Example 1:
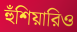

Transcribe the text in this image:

হুঁশিয়ারিও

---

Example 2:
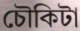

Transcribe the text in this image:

চৌকিটা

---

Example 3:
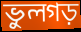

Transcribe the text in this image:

ভুলগড়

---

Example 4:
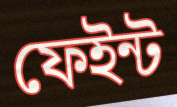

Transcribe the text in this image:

ফেইন্ট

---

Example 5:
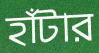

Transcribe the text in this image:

হাঁটার